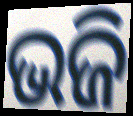
ଭଜି